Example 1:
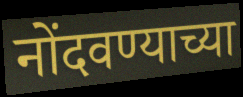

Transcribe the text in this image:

नोंदवण्याच्या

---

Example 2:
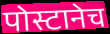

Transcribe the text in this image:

पोस्टानेच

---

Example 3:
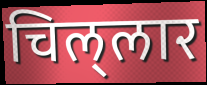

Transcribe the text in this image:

चिल्लार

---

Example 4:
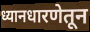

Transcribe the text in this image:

ध्यानधारणेतून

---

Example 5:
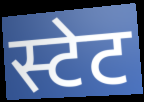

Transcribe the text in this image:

स्टेट